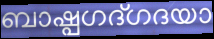
ബാഷ്പഗദ്ഗദയാ